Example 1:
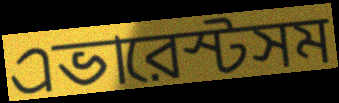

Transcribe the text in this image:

এভারেস্টসম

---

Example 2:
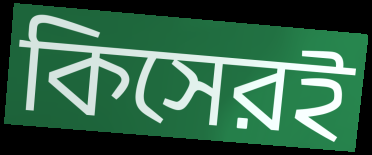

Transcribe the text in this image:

কিসেরই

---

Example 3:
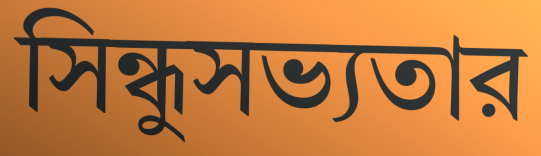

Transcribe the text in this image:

সিন্ধুসভ্যতার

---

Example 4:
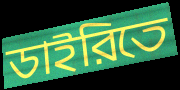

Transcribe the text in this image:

ডাইরিতে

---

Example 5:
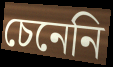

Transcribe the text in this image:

চেনেনি